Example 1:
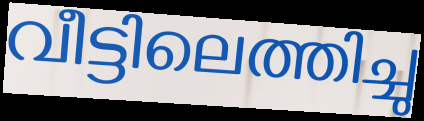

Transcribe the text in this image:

വീട്ടിലെത്തിച്ചു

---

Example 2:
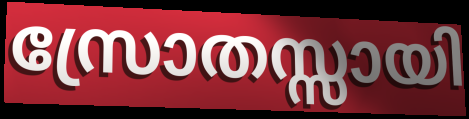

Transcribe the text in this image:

സ്രോതസ്സായി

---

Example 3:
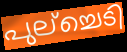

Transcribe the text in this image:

പുല്ച്ചെടി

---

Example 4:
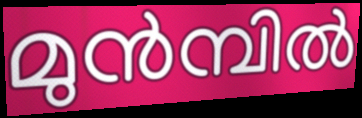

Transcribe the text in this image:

മുൻമ്പിൽ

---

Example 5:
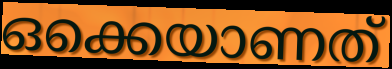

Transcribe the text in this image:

ഒക്കെയാണത്